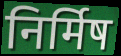
निर्मिष